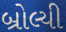
બ્રોલ્યી